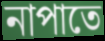
নাপাতে